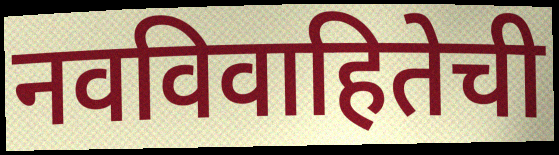
नवविवाहितेची